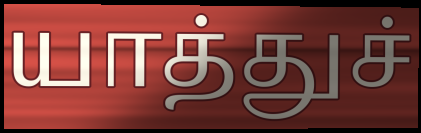
யாத்துச்